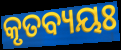
କୃତବ୍ୟୟଃ